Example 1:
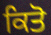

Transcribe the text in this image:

ਕਿਤੋ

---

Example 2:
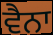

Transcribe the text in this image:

ਵੈਨਾ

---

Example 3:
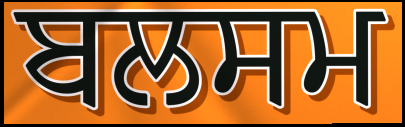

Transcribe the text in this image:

ਬਲਸਮ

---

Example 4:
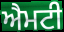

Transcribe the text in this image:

ਐਮਟੀ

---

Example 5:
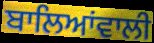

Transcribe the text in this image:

ਬਾਲਿਆਂਵਾਲੀ